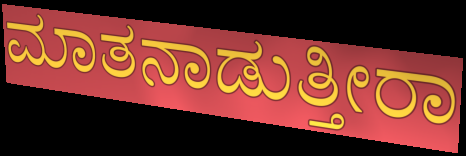
ಮಾತನಾಡುತ್ತೀರಾ